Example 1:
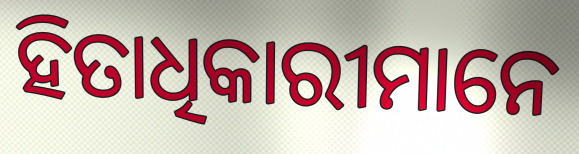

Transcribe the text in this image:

ହିତାଧିକାରୀମାନେ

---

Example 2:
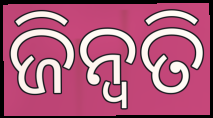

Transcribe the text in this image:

ଜିନ୍ୱତି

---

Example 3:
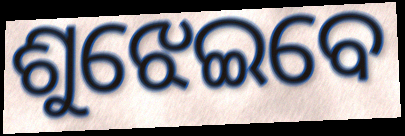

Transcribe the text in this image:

ଶୁଝେଇବେ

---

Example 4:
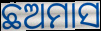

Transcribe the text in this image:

ଛଅମାସ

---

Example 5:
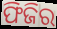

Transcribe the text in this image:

ଫିଜିର